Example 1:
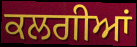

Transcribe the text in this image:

ਕਲਗੀਆਂ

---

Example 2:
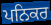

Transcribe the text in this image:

ਪਨਿਕਰ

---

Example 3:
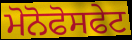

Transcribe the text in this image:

ਮੋਨੋਫੋਸਫੇਟ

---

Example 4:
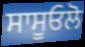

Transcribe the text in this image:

ਸਾਸੂਓਲੋ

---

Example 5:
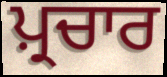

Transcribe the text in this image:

ਪ਼੍ਰਚਾਰ